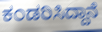
ಕಂಡರಿಸಿದ್ದಾನೆ